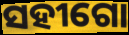
ସହୀଗୋ